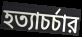
হত্যাচর্চার